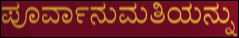
ಪೂರ್ವಾನುಮತಿಯನ್ನು